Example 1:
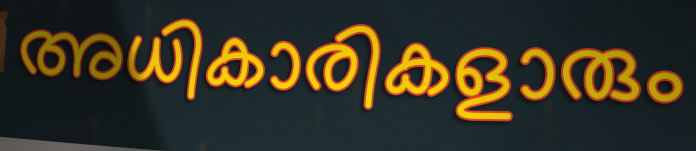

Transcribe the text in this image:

അധികാരികളാരും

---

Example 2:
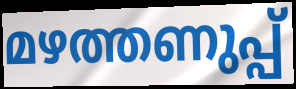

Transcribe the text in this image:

മഴത്തണുപ്പ്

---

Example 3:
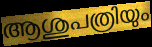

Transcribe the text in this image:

ആശുപത്രിയും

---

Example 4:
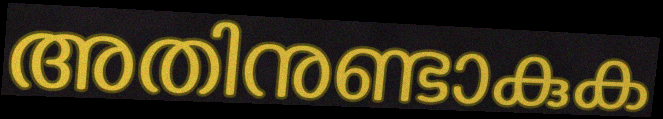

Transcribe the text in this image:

അതിനുണ്ടാകുക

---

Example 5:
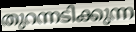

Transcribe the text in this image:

തുറന്നടിക്കുന്ന